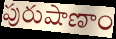
పురుషాణాం